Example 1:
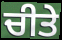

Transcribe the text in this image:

ਚੀਤੇ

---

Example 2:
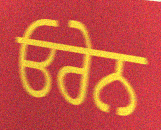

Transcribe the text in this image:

ਓਰੇਨ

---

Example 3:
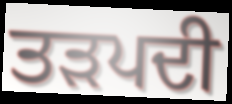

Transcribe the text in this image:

ਤੜਪਦੀ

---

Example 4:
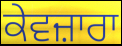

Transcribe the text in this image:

ਕੇਵਜ਼ਾਰਾ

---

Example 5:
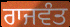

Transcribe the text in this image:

ਰਾਜਵੰਤ